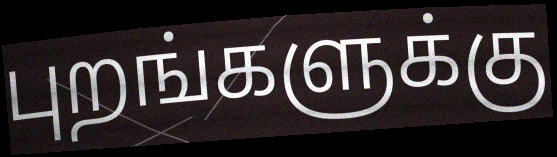
புறங்களுக்கு